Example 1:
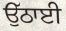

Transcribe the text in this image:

ਉੱਠਾਈ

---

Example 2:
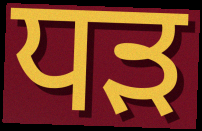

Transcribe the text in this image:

ਧੜ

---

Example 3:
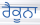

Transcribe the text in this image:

ਰੈਕੂਨਾ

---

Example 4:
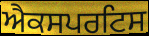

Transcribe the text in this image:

ਐਕਸਪਰਟਿਸ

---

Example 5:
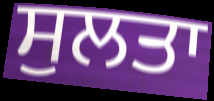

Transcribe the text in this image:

ਸੁਲਤਾ